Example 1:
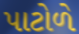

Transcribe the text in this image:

પાટોળે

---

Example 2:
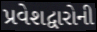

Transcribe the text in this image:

પ્રવેશદ્વારોની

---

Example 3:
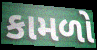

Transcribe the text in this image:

કામળો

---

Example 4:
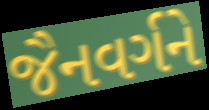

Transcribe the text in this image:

જૈનવર્ગને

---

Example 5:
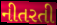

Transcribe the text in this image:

નીતરતી